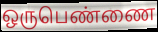
ஒருபெண்ணை